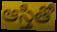
ఆస్తితో